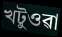
খটুওৱা